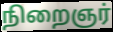
நிறைஞர்